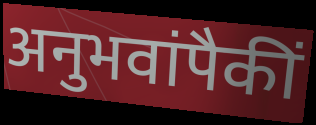
अनुभवांपैकीं